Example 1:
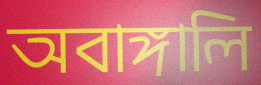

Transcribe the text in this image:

অবাঙ্গালি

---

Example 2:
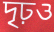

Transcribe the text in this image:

দৃঢ়ও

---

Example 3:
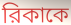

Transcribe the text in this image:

রিকাকে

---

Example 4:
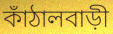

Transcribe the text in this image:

কাঁঠালবাড়ী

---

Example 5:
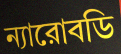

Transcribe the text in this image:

ন্যারোবডি